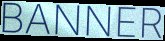
BANNER